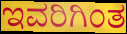
ಇವರಿಗಿಂತ